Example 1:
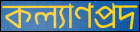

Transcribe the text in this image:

কল্যাণপ্রদ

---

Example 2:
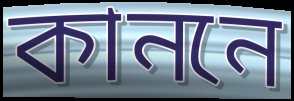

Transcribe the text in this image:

কাননে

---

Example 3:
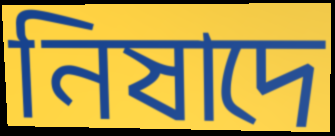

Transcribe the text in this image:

নিষাদে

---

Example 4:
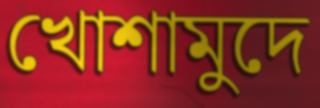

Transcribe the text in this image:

খোশামুদে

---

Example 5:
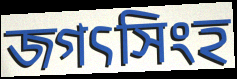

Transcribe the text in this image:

জগৎসিংহ